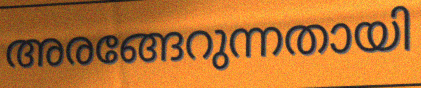
അരങ്ങേറുന്നതായി